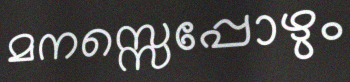
മനസ്സെപ്പോഴും